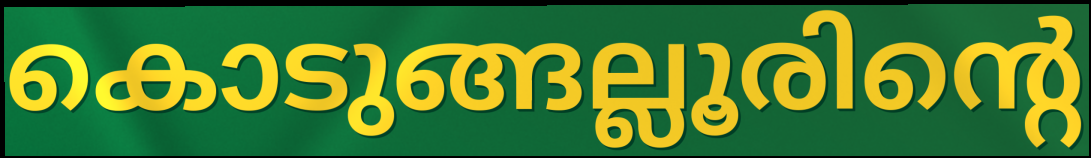
കൊടുങ്ങല്ലൂരിന്റെ